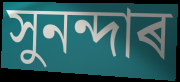
সুনন্দাৰ